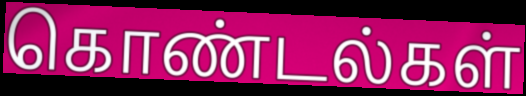
கொண்டல்கள்